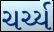
ચર્ચ્ય